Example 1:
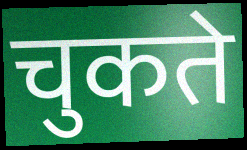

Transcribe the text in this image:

चुकते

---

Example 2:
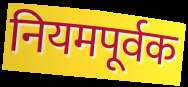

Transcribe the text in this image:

नियमपूर्वक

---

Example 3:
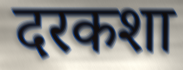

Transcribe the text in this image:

दरकशा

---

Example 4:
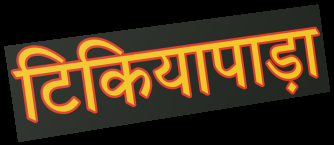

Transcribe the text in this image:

टिकियापाड़ा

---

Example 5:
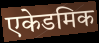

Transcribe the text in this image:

एकेडमिक